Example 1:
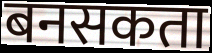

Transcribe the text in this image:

बनसकता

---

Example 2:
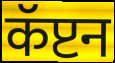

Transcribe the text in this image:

कॅप्टन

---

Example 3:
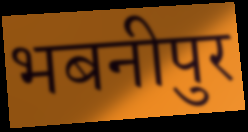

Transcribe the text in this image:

भबनीपुर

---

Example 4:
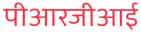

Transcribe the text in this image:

पीआरजीआई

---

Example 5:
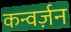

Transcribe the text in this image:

कन्वर्ज़न